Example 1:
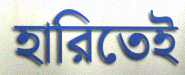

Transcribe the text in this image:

হারিতেই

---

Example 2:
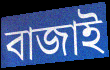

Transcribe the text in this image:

বাজাই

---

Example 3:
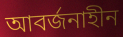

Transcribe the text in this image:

আবর্জনাহীন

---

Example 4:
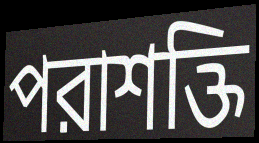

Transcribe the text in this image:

পরাশক্তি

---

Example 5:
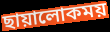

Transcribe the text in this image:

ছায়ালোকময়